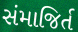
સંમાજિર્ત